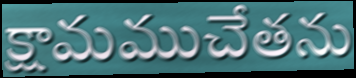
క్షామముచేతను